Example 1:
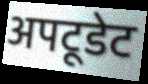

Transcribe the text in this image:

अपटूडेट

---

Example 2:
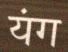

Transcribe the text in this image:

यंग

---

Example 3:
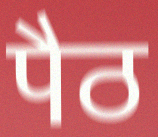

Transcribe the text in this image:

पैठ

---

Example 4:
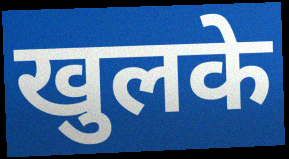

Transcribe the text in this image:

खुलके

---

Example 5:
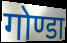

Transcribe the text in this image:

गोण्डा